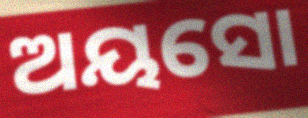
ଅୟସୋ